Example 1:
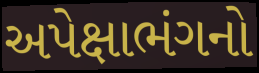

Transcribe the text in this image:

અપેક્ષાભંગનો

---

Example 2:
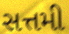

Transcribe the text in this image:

સત્તમી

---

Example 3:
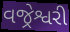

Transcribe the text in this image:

વજ્રેશ્વરી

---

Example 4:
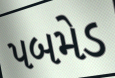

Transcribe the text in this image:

પબમેડ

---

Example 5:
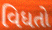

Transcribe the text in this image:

વિધતો